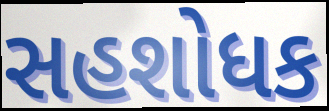
સહશોધક